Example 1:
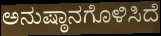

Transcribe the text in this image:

ಅನುಷ್ಠಾನಗೊಳಿಸಿದೆ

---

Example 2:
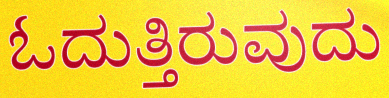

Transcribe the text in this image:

ಓದುತ್ತಿರುವುದು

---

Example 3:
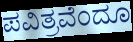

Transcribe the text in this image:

ಪವಿತ್ರವೆಂದೂ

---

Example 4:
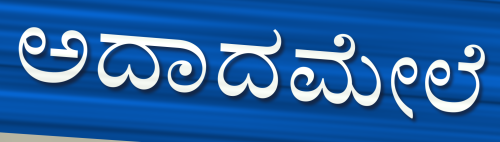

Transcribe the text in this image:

ಅದಾದಮೇಲೆ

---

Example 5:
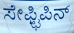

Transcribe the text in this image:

ಸೇಫ್ಟಿಪಿನ್